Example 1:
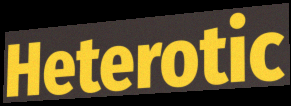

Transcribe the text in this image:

Heterotic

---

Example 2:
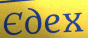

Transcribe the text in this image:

Edex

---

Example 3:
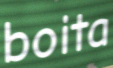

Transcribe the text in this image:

boita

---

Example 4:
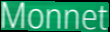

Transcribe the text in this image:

Monnet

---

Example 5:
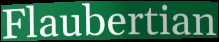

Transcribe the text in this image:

Flaubertian